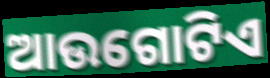
ଆଉଗୋଟିଏ